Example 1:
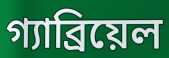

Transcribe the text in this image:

গ্যাব্রিয়েল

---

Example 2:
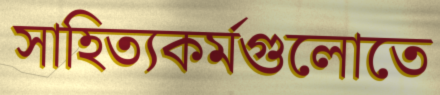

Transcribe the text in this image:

সাহিত্যকর্মগুলোতে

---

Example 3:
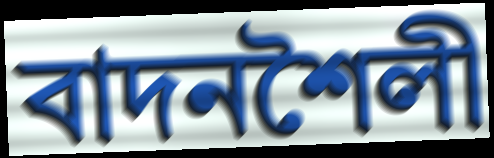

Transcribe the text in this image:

বাদনশৈলী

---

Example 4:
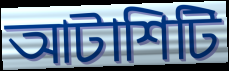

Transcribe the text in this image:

আটাশিটি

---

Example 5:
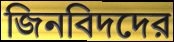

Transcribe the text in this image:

জিনবিদদের